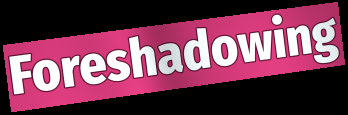
Foreshadowing